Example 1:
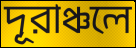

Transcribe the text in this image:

দূরাঞ্চলে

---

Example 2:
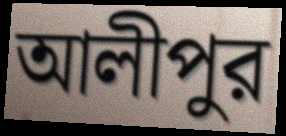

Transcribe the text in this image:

আলীপুর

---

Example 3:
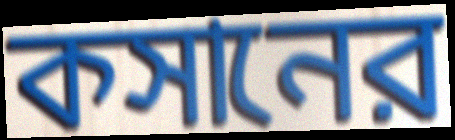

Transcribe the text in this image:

কসানের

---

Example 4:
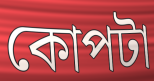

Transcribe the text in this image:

কোপটা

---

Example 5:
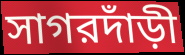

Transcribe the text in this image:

সাগরদাঁড়ী